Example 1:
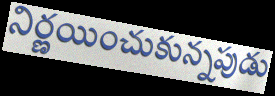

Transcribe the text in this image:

నిర్ణయించుకున్నపుడు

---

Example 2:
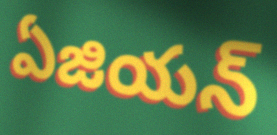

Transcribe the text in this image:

ఏజియన్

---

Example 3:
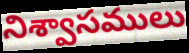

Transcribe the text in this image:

నిశ్వాసములు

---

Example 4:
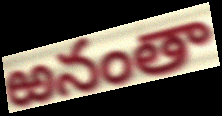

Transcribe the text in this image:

ఱనంతా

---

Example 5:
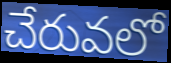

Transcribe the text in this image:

చేరువలో